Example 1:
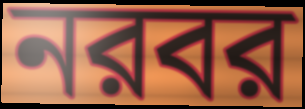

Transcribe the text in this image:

নরবর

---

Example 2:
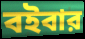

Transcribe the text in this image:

বইবার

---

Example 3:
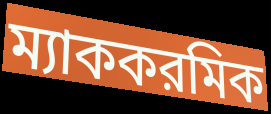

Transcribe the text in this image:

ম্যাককরমিক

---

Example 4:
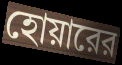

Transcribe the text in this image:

হোয়ারের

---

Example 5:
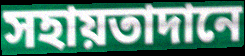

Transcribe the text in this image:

সহায়তাদানে